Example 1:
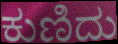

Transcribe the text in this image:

ಕುಣಿದು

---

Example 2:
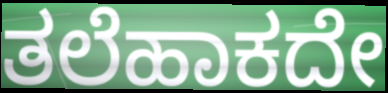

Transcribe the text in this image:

ತಲೆಹಾಕದೇ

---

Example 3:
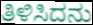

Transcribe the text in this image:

ತಿಳಿಸಿದನು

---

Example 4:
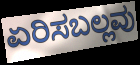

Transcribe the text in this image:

ಏರಿಸಬಲ್ಲವು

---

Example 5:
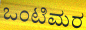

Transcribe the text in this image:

ಒಂಟಿಮರ